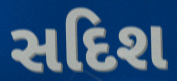
સદિશ